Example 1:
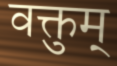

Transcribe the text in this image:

वक्तुम्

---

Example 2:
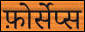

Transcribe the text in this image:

फ़ोर्सेप्स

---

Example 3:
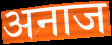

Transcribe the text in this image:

अनाज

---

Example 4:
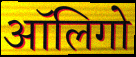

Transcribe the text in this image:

ऑलिगो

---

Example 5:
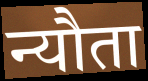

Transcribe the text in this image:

न्यौता